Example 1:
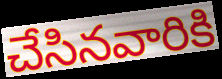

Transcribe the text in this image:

చేసినవారికి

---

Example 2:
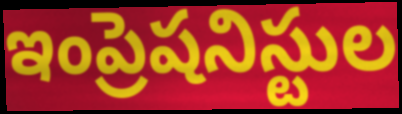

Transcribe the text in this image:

ఇంప్రెషనిస్టుల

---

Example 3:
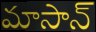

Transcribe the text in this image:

మాసాన్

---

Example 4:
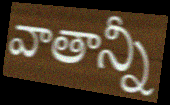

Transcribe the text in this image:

వాతాన్నీ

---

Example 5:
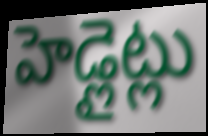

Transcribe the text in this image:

హెడ్లైట్లు